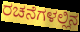
ರಚನೆಗಳಲ್ಲಿನ